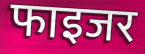
फाइजर